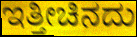
ಇತ್ತೀಚಿನದು